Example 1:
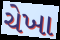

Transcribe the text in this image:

ચેખા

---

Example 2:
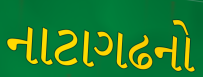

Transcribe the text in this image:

નાટાગઢનો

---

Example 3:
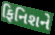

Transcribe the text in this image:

ફિનિશને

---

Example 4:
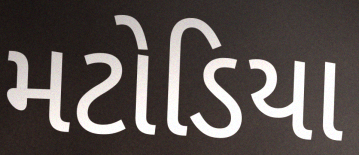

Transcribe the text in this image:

મટોડિયા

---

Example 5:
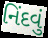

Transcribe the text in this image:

નિંદવું